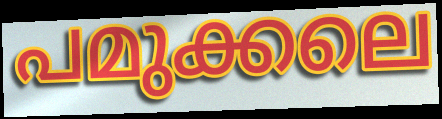
പമുക്കലെ